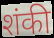
शंकी